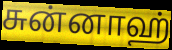
சுன்னாஹ்